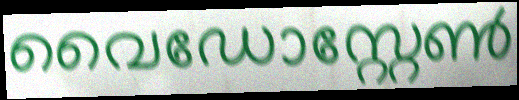
വൈഡോസ്റ്റേൺ